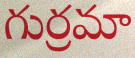
గుర్రమా